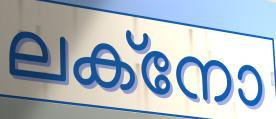
ലക്നോ